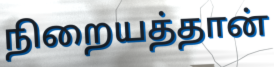
நிறையத்தான்